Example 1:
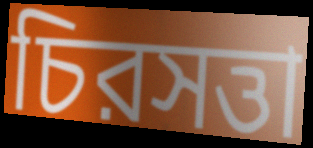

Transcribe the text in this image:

চিরসত্তা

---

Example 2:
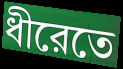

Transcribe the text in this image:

ধীরেতে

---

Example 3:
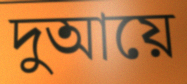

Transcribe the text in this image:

দুআয়ে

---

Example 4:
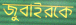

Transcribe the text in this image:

জুবাইরকে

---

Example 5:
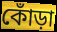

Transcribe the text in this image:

কোঁড়া